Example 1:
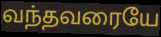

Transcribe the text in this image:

வந்தவரையே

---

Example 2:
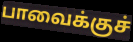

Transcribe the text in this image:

பாவைக்குச்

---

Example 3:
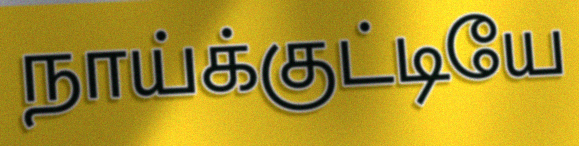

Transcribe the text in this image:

நாய்க்குட்டியே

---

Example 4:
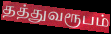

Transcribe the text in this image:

தத்துவரூபம்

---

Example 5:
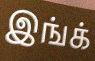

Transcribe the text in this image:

இங்க்